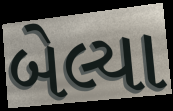
બેલ્યા